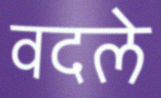
वदले